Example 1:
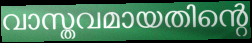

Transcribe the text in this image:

വാസ്തവമായതിന്റെ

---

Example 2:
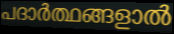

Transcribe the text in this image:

പദാർത്ഥങ്ങളാൽ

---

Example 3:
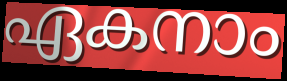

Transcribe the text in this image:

ഏകനാം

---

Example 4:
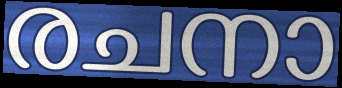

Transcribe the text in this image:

രചനാ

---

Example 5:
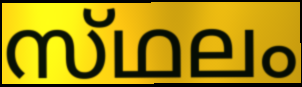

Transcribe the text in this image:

സ്‌ഥലം